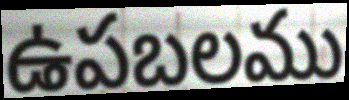
ఉపబలము